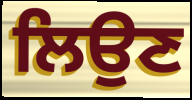
ਲਿਉਣ